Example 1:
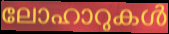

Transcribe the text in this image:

ലോഹാറുകൾ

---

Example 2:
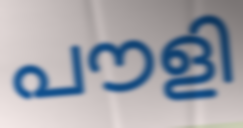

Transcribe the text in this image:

പൗളി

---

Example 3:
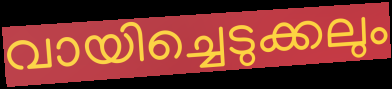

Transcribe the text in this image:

വായിച്ചെടുക്കലും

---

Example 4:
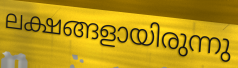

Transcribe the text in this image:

ലക്ഷങ്ങളായിരുന്നു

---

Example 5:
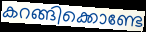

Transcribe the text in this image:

കറങ്ങിക്കൊണ്ടേ